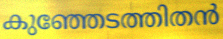
കുഞ്ഞേടത്തിതൻ